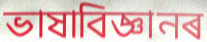
ভাষাবিজ্ঞানৰ